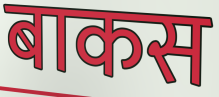
बाकस